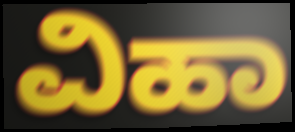
ವಿಹಾ